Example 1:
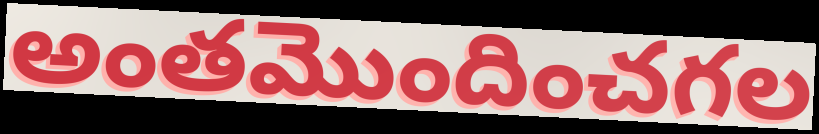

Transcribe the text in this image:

అంతమొందించగల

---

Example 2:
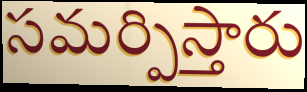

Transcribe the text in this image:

సమర్పిస్తారు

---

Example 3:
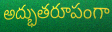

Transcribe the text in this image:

అద్భుతరూపంగా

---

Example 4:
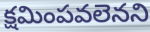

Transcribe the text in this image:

క్షమింపవలెనని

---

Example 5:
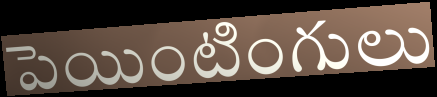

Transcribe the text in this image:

పెయింటింగులు